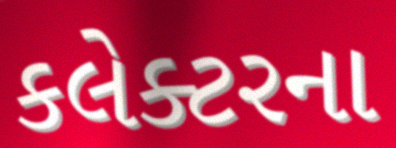
કલેક્ટરના